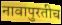
नावापुरतीच